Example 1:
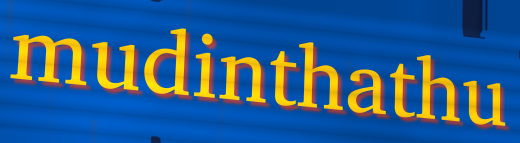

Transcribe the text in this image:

mudinthathu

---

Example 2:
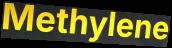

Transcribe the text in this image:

Methylene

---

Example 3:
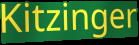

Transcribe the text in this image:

Kitzinger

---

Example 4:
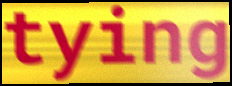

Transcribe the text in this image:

tying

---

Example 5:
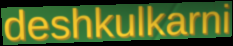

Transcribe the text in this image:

deshkulkarni